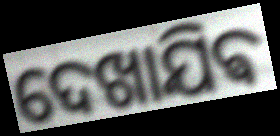
ଦେଖାଯିଵ